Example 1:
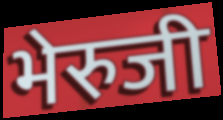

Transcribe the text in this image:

भेरुजी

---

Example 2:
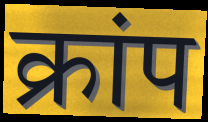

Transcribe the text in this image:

क्रांप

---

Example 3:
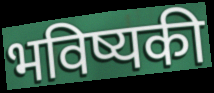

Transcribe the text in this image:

भविष्यकी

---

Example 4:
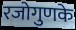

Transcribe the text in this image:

रजोगुणके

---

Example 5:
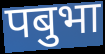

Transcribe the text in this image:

पबुभा